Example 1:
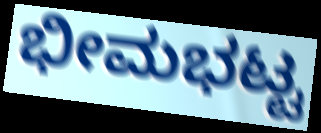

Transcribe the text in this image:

ಭೀಮಭಟ್ಟ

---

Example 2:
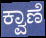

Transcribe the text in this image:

ಕ್ವಾಣೆ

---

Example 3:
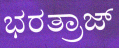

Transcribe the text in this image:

ಭರತ್ರಾಜ್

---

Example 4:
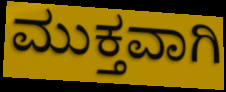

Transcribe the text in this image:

ಮುಕ್ತವಾಗಿ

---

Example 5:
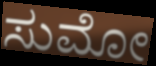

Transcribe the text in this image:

ಸುಮೋ